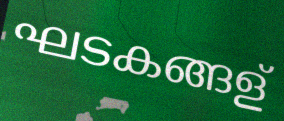
ഘടകങ്ങള്